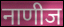
नाणीज